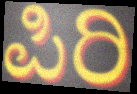
ಪಿರಿ